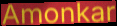
Amonkar